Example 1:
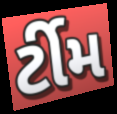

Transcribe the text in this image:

ર્ટીમ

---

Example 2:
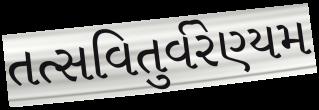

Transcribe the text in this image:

તત્સવિતુર્વરેણ્યમ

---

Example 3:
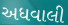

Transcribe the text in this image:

અધવાલી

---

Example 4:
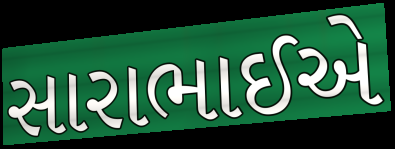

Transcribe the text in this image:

સારાભાઈએ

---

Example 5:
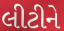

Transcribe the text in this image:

લીટીને